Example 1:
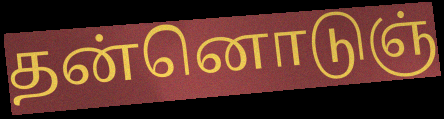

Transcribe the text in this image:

தன்னொடுஞ்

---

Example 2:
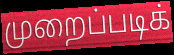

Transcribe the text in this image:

முறைப்படிக்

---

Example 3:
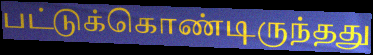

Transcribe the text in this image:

பட்டுக்கொண்டிருந்தது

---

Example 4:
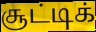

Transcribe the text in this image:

சூட்டிக்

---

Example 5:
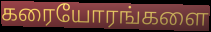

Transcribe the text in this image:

கரையோரங்களை